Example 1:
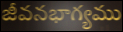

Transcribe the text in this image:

జీవనభాగ్యము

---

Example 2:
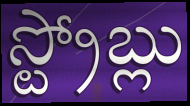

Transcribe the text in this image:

స్ట్రోబ్లు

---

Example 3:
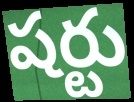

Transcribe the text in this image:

షర్టు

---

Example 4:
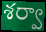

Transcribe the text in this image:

శర్వా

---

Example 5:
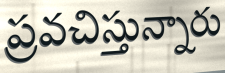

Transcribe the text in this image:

ప్రవచిస్తున్నారు